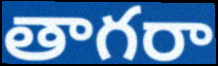
తాగరా